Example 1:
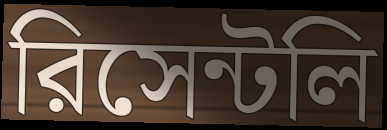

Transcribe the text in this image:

রিসেন্টলি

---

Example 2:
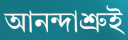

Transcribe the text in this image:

আনন্দাশ্রুই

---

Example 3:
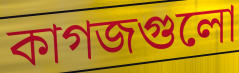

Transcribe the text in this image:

কাগজগুলো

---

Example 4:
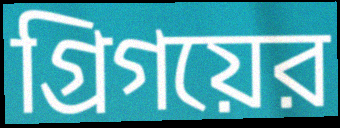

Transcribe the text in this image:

গ্রিগয়ের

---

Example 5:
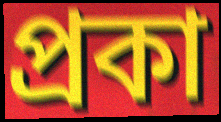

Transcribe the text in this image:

প্রকা